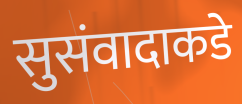
सुसंवादाकडे